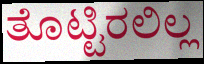
ತೊಟ್ಟಿರಲಿಲ್ಲ